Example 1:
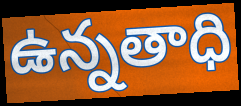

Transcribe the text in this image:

ఉన్నతాధి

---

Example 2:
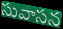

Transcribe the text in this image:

సువాసన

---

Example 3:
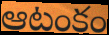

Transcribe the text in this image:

ఆటంకం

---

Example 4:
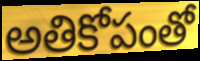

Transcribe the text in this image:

అతికోపంతో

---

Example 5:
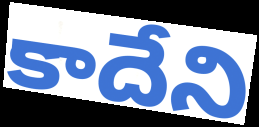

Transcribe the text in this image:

కాదేని